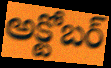
అక్టోబర్